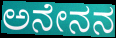
ಅನೇನನ